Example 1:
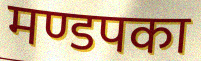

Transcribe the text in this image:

मण्डपका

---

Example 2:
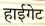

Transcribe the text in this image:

हाईगेट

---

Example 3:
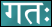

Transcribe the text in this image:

गतः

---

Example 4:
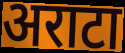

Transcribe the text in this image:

अराटा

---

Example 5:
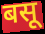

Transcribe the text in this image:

बसू